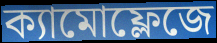
ক্যামোফ্লেজে